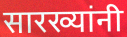
सारख्यांनी